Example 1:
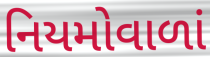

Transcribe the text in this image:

નિયમોવાળાં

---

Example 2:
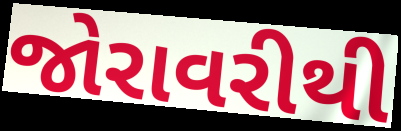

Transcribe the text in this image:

જોરાવરીથી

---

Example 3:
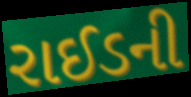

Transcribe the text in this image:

રાઈડની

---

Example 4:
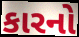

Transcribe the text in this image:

કારનો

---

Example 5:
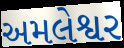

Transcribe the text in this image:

અમલેશ્વર